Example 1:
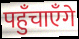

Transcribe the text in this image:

पहुँचाएँगे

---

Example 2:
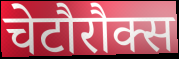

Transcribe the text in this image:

चेटौरौक्स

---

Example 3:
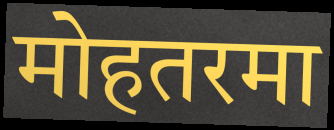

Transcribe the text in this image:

मोहतरमा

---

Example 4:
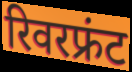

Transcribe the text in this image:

रिवरफ्रंट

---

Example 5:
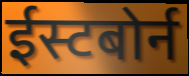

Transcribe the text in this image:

ईस्टबोर्न